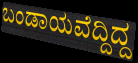
ಬಂಡಾಯವೆದ್ದಿದ್ದ